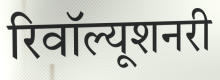
रिवॉल्यूशनरी